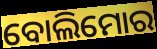
ବୋଲିମୋର